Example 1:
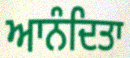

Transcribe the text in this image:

ਆਨੰਦਿਤਾ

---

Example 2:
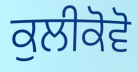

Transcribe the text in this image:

ਕੁਲੀਕੋਵੋ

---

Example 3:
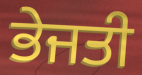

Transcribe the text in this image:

ਭੇਜਤੀ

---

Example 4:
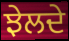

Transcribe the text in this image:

ਝੇਲਦੇ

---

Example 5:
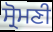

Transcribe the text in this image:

ਸ੍ਰੋਮਣੀ